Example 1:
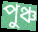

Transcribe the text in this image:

পুঞ্চ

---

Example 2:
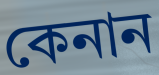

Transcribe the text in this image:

কেনান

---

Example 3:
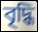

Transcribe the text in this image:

বৃদ্ধি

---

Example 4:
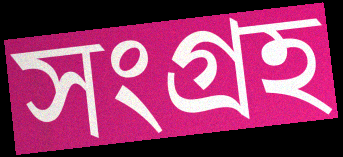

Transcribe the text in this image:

সংগ্রহ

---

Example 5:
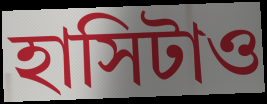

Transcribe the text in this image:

হাসিটাও